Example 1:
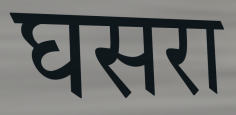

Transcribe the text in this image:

घसरा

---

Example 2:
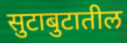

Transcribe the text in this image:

सुटाबुटातील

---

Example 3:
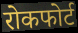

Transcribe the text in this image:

रोकफोर्ट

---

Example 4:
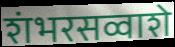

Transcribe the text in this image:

शंभरसव्वाशे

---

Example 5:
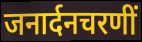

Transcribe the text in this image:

जनार्दनचरणीं